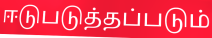
ஈடுபடுத்தப்படும்